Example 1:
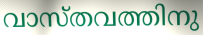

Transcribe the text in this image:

വാസ്തവത്തിനു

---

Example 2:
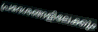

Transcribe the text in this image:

പ്രദേശങ്ങളിലേക്കും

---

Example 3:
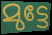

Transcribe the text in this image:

മുട്ടേ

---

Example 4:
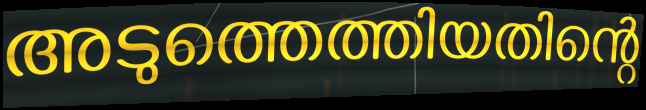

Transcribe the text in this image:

അടുത്തെത്തിയതിന്റെ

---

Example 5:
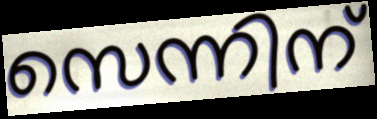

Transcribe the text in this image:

സെന്നിന്